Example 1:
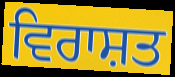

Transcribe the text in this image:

ਵਿਰਾਸ਼ਤ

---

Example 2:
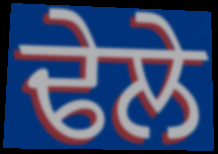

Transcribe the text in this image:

ਢੇਲੇ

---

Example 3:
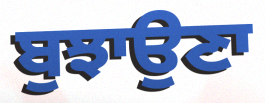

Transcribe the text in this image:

ਬੁਝਾਉਣਾ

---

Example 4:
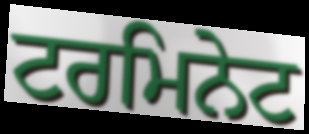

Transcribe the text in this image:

ਟਰਮਿਨੇਟ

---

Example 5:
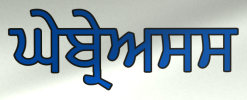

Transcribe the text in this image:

ਘੇਬ੍ਰੇਅਸਸ